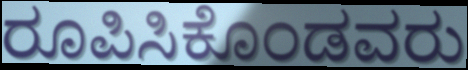
ರೂಪಿಸಿಕೊಂಡವರು